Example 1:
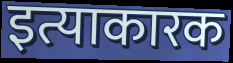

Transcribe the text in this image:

इत्याकारक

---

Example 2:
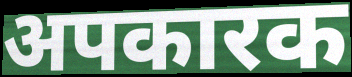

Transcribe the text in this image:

अपकारक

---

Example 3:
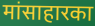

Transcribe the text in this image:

मांसाहारका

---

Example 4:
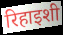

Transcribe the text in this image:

रिहाइशी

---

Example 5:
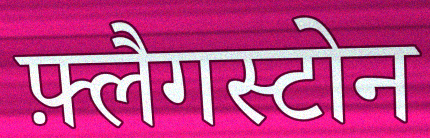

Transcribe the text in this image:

फ़्लैगस्टोन